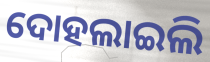
ଦୋହଲାଇଲି